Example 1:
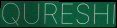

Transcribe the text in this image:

QURESHI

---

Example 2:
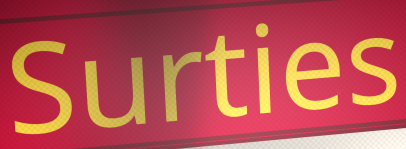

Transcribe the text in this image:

Surties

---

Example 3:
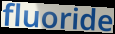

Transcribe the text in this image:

fluoride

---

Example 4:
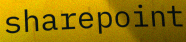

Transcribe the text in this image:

sharepoint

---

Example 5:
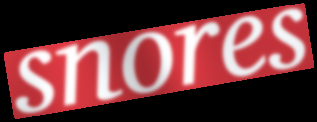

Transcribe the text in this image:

snores